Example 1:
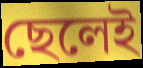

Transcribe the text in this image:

ছেলেই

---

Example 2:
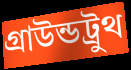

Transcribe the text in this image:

গ্রাউন্ডট্রুথ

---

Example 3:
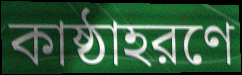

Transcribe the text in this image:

কাষ্ঠাহরণে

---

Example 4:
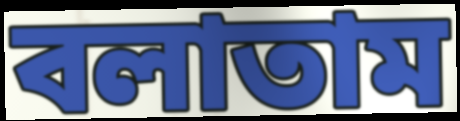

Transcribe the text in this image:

বলাতাম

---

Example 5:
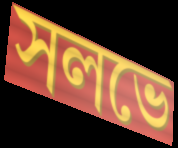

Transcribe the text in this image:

সলভে